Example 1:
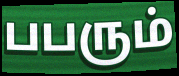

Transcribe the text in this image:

பபரும்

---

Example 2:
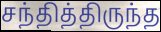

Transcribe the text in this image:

சந்தித்திருந்த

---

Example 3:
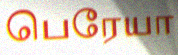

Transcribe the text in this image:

பெரேயா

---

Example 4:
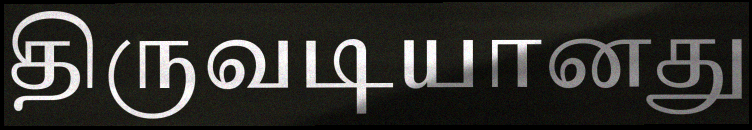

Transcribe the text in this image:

திருவடியானது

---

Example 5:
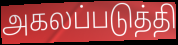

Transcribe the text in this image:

அகலப்படுத்தி